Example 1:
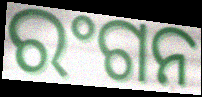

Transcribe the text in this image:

ରଂଗନ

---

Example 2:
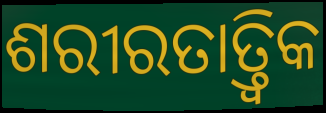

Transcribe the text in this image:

ଶରୀରତାତ୍ତ୍ଵିକ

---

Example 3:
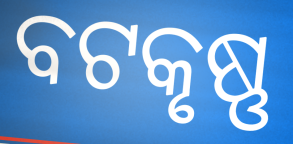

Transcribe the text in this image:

ବଟକୃଷ୍ଣ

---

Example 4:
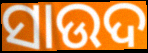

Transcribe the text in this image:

ସାଉଦ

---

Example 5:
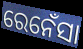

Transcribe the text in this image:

ରେନେଁସା